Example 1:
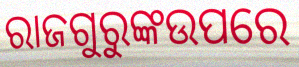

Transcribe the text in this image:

ରାଜଗୁରୁଙ୍କଉପରେ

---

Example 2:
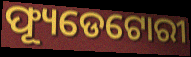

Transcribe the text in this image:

ଫ୍ୟୂଡେଟୋରୀ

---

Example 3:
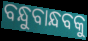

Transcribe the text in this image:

ବନ୍ଧୁବାନ୍ଧବକୁ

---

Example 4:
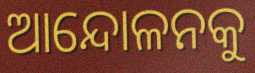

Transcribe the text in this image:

ଆନ୍ଦୋଳନକୁ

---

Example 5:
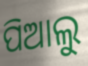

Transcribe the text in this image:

ପିଆଲୁ